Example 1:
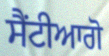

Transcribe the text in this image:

ਸੈਂਟੀਆਗੋ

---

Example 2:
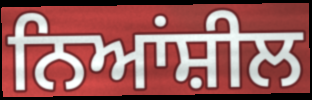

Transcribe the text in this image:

ਨਿਆਂਸ਼ੀਲ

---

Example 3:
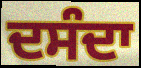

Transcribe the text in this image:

ਦਸੰਦਾ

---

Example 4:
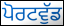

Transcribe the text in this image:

ਪੋਰਟਵੁੱਡ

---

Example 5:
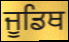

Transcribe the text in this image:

ਜੂਡਿਥ